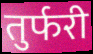
तुर्फरी